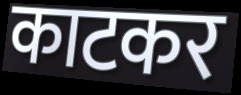
काटकर